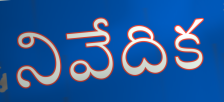
నివేదిక